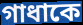
গাধাকে